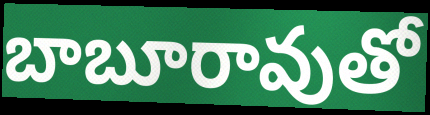
బాబూరావుతో